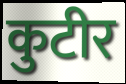
कुटीर